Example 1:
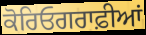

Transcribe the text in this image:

ਕੋਰਿਓਗਰਾਫ਼ੀਆਂ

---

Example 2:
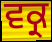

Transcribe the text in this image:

ਵਕ੍ਰ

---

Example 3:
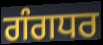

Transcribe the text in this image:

ਗੰਗਧਰ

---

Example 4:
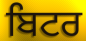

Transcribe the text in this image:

ਬਿਟਰ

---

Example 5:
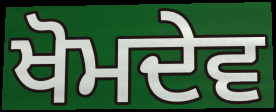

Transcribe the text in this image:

ਖੋਮਦੇਵ